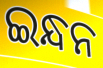
ଇନ୍ଧନ